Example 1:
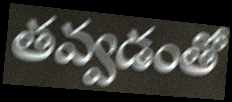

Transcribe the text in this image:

తవ్వడంతో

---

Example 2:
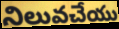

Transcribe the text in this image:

నిలువచేయు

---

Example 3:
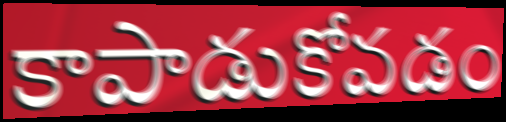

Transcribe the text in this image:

కాపాడుకోవడం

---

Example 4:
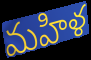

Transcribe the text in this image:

మహిళ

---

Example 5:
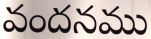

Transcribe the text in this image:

వందనము